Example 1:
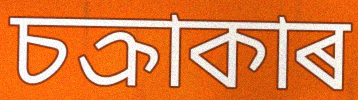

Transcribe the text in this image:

চক্ৰাকাৰ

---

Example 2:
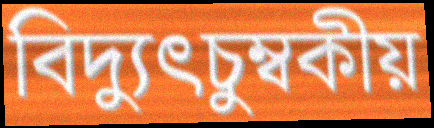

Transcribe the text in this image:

বিদ্যুৎচুম্বকীয়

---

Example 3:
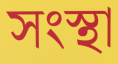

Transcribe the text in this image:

সংস্থা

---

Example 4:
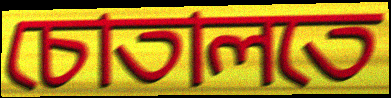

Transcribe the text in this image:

চোতালতে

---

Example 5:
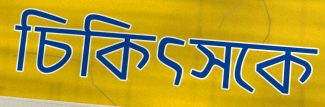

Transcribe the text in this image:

চিকিৎসকে